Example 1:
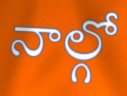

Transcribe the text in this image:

నాల్గో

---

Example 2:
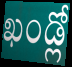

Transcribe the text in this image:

ఖండ్లో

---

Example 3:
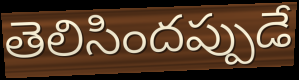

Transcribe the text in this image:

తెలిసిందప్పుడే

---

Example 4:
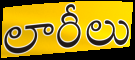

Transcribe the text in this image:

లారీలు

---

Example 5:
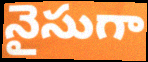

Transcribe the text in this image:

నైసుగా